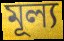
মূল্য